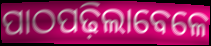
ପାଠପଢ଼ିଲାବେଳେ